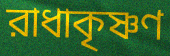
রাধাকৃষ্ণণ